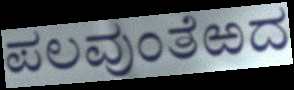
ಪಲವುಂತೆಱದ